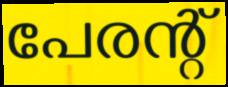
പേരന്റ്